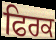
ਫਿਰਕ